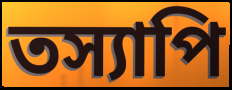
তস্যাপি